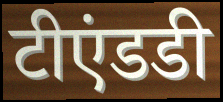
टीएंडडी